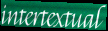
intertextual